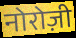
नोरोज़ी